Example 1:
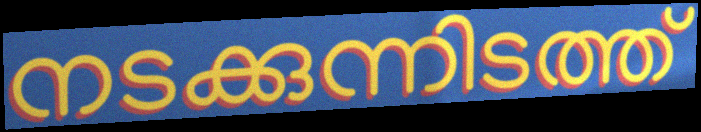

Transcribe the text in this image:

നടക്കുന്നിടത്ത്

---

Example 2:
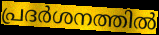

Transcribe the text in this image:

പ്രദർശനത്തിൽ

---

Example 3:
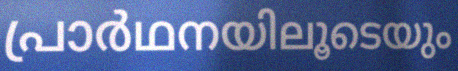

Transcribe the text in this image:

പ്രാർഥനയിലൂടെയും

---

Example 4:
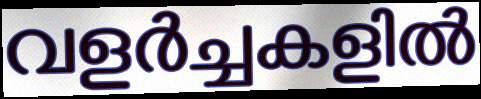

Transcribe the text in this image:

വളർച്ചകളിൽ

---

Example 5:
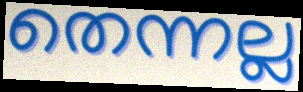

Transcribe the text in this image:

തെന്നല്ല